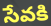
సేవకి